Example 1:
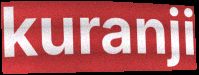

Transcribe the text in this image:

kuranji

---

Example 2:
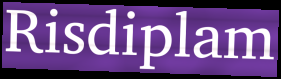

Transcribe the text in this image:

Risdiplam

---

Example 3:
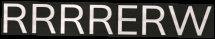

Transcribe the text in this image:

RRRRERW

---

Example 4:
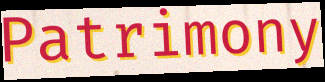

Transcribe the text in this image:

Patrimony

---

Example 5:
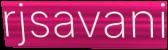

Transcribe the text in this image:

rjsavani